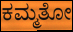
ಕಮ್ಮತೋ